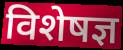
विशेषज्ञ